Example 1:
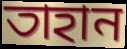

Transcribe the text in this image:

তাহান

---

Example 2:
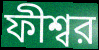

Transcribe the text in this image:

ফীশ্বর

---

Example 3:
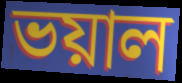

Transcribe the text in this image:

ভয়াল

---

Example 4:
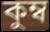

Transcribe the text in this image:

কুম্ব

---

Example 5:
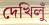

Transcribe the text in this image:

দেখিলুঁ